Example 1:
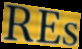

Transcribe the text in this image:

REs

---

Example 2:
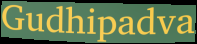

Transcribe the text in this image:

Gudhipadva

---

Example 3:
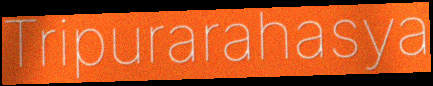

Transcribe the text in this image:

Tripurarahasya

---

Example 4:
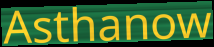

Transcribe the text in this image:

Asthanow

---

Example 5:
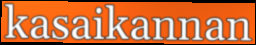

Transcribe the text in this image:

kasaikannan